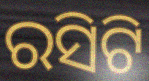
ରସିଟି